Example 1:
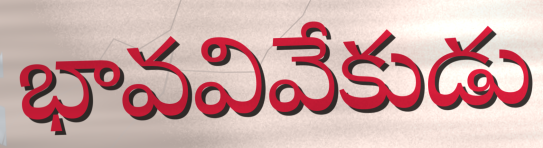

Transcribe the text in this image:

భావవివేకుడు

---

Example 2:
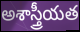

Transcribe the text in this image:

అశాస్త్రీయత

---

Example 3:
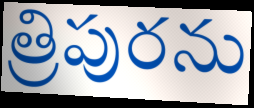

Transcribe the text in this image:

త్రిపురను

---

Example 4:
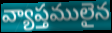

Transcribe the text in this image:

వ్యాప్తములైన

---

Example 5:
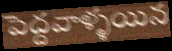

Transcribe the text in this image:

పెద్దవాళ్ళయిన